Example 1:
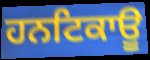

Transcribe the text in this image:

ਹਨਟਿਕਾਊ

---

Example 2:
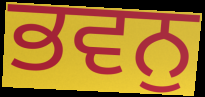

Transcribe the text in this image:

ਭਵਨੁ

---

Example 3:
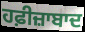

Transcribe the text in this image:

ਹਫ਼ੀਜ਼ਾਬਾਦ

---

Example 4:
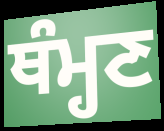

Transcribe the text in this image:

ਥੰਮ੍ਹਣ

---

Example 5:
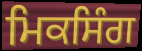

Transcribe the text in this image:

ਮਿਕਸਿੰਗ